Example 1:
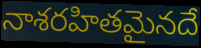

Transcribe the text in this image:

నాశరహితమైనదే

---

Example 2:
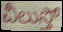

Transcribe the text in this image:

చీలుస్తో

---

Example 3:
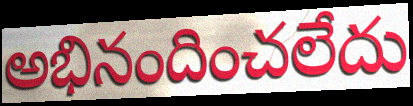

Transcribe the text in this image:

అభినందించలేదు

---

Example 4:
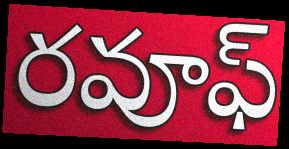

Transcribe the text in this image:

రవూఫ్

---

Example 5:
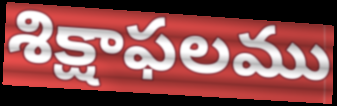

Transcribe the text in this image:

శిక్షాఫలము